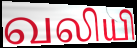
வலியி